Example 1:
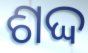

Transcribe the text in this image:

ଶଦ୍ଦ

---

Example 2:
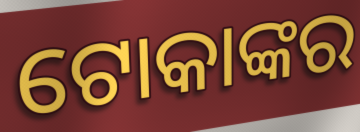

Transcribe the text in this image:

ଟୋକାଙ୍କର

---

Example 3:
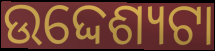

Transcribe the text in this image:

ଉଦ୍ଦେଶ୍ୟଟା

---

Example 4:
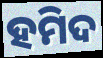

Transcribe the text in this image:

ହମିଦ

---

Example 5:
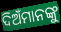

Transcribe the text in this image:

ଦିଅଁମାନଙ୍କୁ